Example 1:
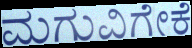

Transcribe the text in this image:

ಮಗುವಿಗೇಕೆ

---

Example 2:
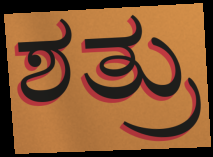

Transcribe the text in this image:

ಶತ್ರು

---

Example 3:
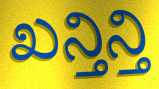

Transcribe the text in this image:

ಖನ್ತಿನ್ತಿ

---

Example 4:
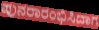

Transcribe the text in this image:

ಪುನರಾರಂಭಿಸಿದಾಗ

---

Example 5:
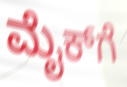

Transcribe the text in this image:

ಮೈಕ್‌ಗೆ